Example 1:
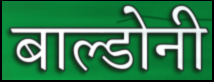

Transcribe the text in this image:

बाल्डोनी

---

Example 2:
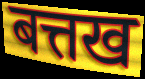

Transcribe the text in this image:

बत्तख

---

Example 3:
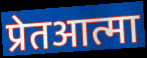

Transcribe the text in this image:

प्रेतआत्मा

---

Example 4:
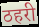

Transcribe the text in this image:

ठहरी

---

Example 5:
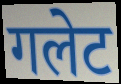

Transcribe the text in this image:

गलेट